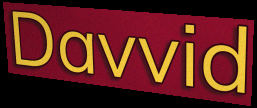
Davvid